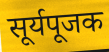
सूर्यपूजक